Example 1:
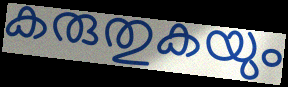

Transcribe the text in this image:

കരുതുകയും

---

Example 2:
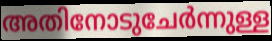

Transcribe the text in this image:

അതിനോടുചേർന്നുള്ള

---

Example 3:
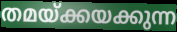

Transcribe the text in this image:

തമയ്ക്കയക്കുന്ന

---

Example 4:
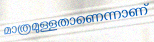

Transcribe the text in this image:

മാത്രമുള്ളതാണെന്നാണ്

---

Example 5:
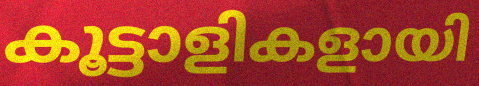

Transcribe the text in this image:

കൂട്ടാളികളായി